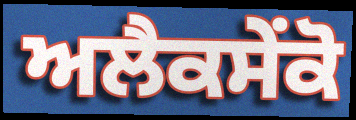
ਅਲੈਕਸੇਂਕੋ